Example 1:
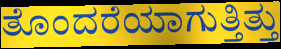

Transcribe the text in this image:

ತೊಂದರೆಯಾಗುತ್ತಿತ್ತು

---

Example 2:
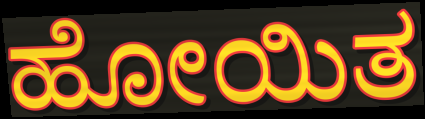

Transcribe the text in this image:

ಹೋಯಿತ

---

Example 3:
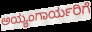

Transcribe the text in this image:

ಅಯ್ಯಂಗಾರ್ಯರಿಗೆ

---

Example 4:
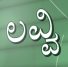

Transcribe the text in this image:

ಲವ್ವಿ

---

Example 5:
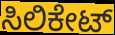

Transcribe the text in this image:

ಸಿಲಿಕೇಟ್